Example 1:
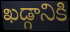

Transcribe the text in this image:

ఖడ్గానికి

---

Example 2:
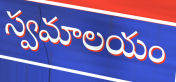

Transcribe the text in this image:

స్వమాలయం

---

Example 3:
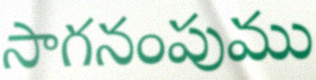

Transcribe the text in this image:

సాగనంపుము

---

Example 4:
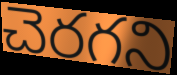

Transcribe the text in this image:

చెరగని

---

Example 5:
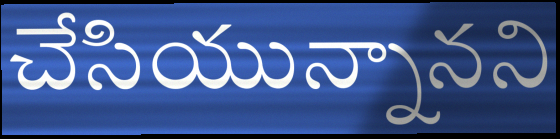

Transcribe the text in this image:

చేసియున్నానని